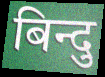
बिन्दु